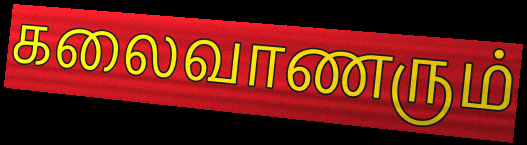
கலைவாணரும்